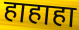
हाहाहा